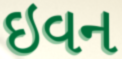
ઇવન